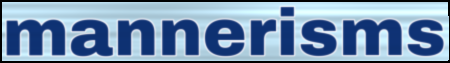
mannerisms